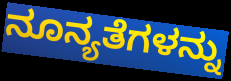
ನೂನ್ಯತೆಗಳನ್ನು